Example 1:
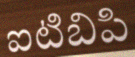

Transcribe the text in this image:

ఐటిబిపి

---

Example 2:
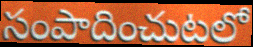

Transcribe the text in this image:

సంపాదించుటలో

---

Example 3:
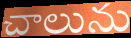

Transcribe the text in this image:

చాలును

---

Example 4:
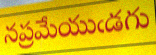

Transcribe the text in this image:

నప్రమేయుఁడగు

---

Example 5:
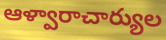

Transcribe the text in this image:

ఆళ్వారాచార్యుల